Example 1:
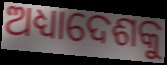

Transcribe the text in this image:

ଅଧ୍ୟାଦେଶକୁ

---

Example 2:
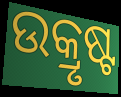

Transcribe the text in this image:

ଉକ୍ରୃଷ୍ଟ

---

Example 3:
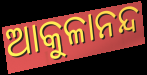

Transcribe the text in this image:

ଆକୁଳାନନ୍ଦ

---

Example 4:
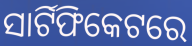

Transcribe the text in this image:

ସାର୍ଟିଫିକେଟରେ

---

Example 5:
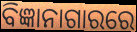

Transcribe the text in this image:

ବିଜ୍ଞାନାଗାରରେ